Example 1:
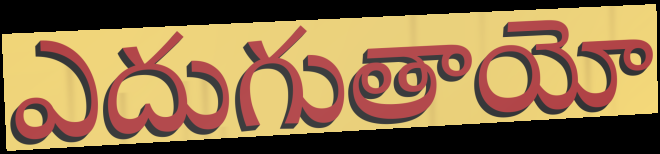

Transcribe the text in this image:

ఎదుగుతాయో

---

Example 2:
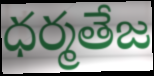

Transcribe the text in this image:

ధర్మతేజ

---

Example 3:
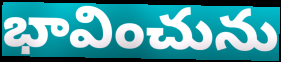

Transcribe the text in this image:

భావించును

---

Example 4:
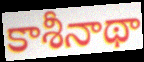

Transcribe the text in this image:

కాశీనాథా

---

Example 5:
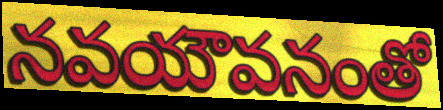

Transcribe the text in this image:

నవయౌవనంతో